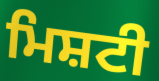
ਮਿਸ਼ਟੀ